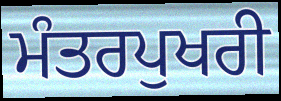
ਮੰਤਰਪੁਖਰੀ